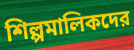
শিল্পমালিকদের